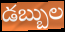
డబ్బుల